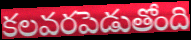
కలవరపెడుతోంది